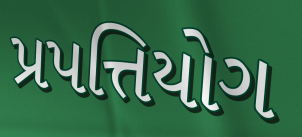
પ્રપત્તિયોગ